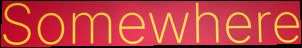
Somewhere